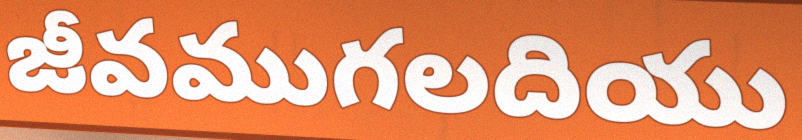
జీవముగలదియు